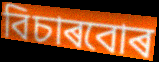
বিচাৰবোৰ